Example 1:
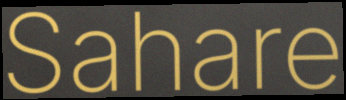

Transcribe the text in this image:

Sahare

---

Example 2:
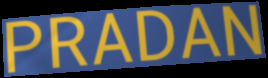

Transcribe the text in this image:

PRADAN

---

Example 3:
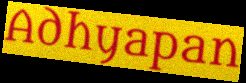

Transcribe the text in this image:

Adhyapan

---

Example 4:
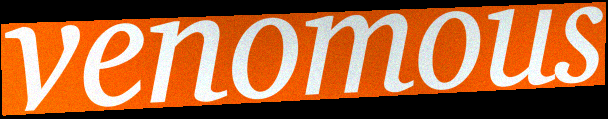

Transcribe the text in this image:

venomous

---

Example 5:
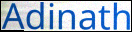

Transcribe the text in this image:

Adinath